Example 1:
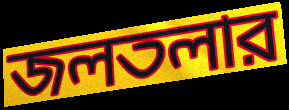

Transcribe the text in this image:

জলতলার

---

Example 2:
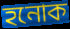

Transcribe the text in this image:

হনোক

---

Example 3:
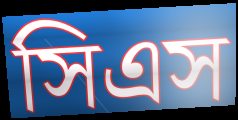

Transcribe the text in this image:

সিএস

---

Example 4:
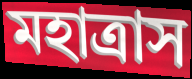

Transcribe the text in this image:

মহাত্রাস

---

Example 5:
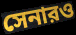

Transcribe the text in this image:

সেনারও